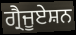
ਗ੍ਰੈਜੂਏਸ਼ਨ